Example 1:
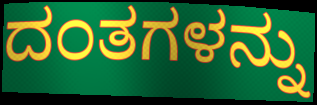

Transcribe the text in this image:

ದಂತಗಳನ್ನು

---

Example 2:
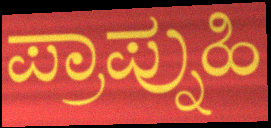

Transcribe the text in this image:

ಪ್ರಾಪ್ನುಹಿ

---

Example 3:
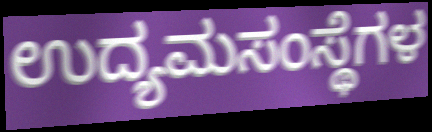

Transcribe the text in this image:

ಉದ್ಯಮಸಂಸ್ಥೆಗಳ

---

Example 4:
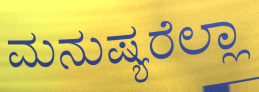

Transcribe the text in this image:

ಮನುಷ್ಯರೆಲ್ಲಾ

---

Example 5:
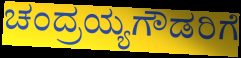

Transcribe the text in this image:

ಚಂದ್ರಯ್ಯಗೌಡರಿಗೆ